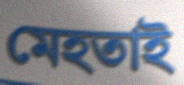
মেহতাই